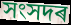
সংসদৰ